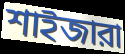
শাইজারা